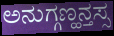
ಅನುಗ್ಗಣ್ಹನ್ತಸ್ಸ